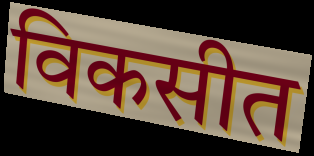
विकसीत